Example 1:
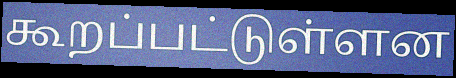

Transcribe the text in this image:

கூறப்பட்டுள்ளன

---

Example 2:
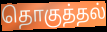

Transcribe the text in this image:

தொகுத்தல்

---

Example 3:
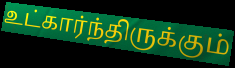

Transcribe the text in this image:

உட்கார்ந்திருக்கும்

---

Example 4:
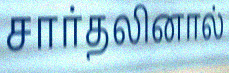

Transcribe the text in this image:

சார்தலினால்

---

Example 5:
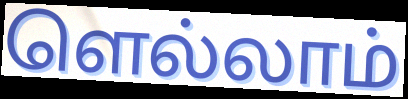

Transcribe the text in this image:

ளெல்லாம்